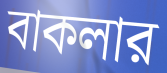
বাকলার